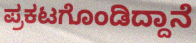
ಪ್ರಕಟಗೊಂಡಿದ್ದಾನೆ